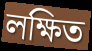
লক্ষিত